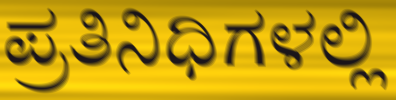
ಪ್ರತಿನಿಧಿಗಳಲ್ಲಿ